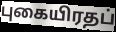
புகையிரதப்